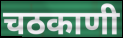
चठकाणी